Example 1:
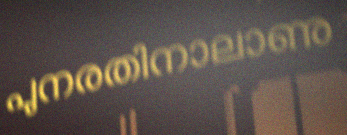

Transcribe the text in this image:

പുനരതിനാലാണു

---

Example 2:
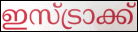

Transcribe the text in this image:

ഇസ്ട്രാക്ക്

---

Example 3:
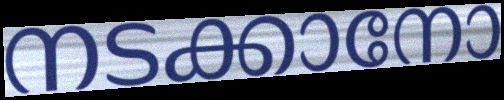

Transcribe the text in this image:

നടക്കാനോ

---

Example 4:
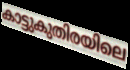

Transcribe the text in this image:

കാട്ടുകുതിരയിലെ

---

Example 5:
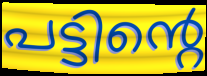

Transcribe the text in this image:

പട്ടിന്റെ